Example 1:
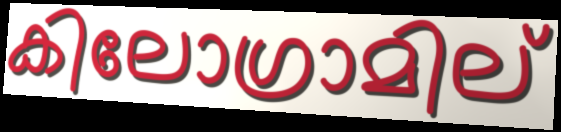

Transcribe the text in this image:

കിലോഗ്രാമില്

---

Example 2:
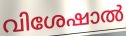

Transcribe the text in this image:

വിശേഷാൽ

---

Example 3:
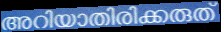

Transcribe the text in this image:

അറിയാതിരിക്കരുത്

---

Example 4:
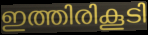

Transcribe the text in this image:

ഇത്തിരികൂടി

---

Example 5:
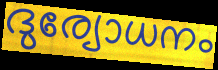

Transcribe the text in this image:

ദുര്യോധനം